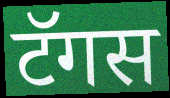
टॅगस